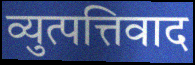
व्युत्पत्तिवाद